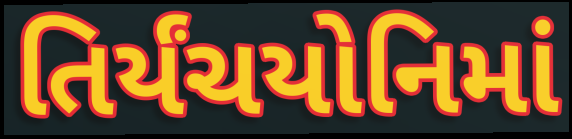
તિર્યંચયોનિમાં